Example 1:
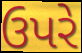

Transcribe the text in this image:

ઉપરે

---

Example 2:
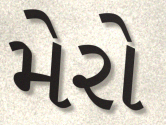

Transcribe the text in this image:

મેરો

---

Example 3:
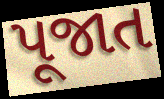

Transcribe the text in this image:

પૂજાત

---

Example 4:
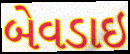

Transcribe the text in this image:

બેવડાઇ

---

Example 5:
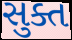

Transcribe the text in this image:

સુક્ત